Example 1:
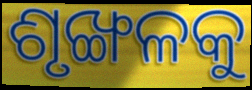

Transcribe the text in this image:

ଶୃଙ୍ଖଳକୁ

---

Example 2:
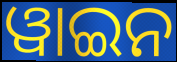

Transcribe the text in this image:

ୱାଇନ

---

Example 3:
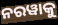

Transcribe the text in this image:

ନରୱାକୁ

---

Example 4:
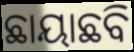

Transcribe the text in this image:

ଛାୟାଛବି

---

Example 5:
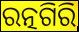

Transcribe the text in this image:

ରତ୍ନଗିରି